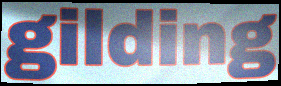
gilding